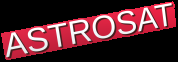
ASTROSAT